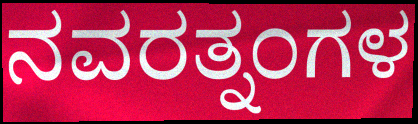
ನವರತ್ನಂಗಳ